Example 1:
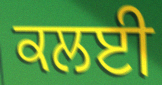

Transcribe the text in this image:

ਕਲਈ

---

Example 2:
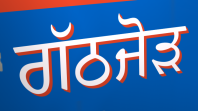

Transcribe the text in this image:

ਗੱਠਜੋੜ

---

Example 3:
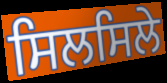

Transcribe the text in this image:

ਸਿਲਸਿਲੇ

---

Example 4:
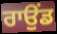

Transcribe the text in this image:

ਰਾਉਂਡ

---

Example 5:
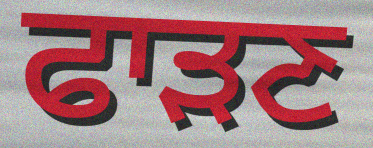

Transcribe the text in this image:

ਫਾੜਣ